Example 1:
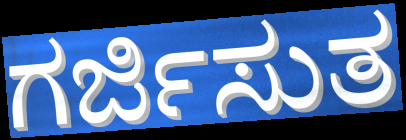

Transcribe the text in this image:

ಗರ್ಜಿಸುತ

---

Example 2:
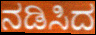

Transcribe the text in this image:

ನಡಿಸಿದ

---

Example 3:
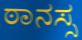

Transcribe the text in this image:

ಠಾನಸ್ಸ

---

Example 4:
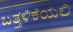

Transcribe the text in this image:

ಬತ್ತಳಿಕೆಯಲಿ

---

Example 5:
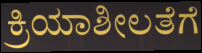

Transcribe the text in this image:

ಕ್ರಿಯಾಶೀಲತೆಗೆ